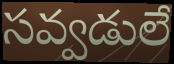
సవ్వడులే